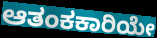
ಆತಂಕಕಾರಿಯೇ